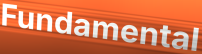
Fundamental